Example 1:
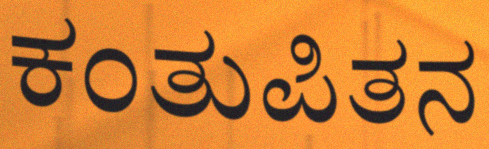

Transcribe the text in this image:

ಕಂತುಪಿತನ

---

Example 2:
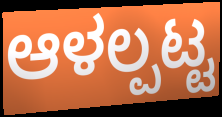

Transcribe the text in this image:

ಆಳಲ್ಪಟ್ಟ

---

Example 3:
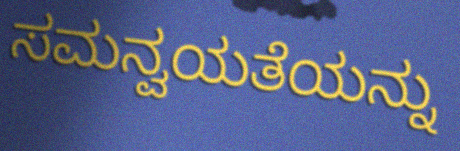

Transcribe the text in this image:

ಸಮನ್ವಯತೆಯನ್ನು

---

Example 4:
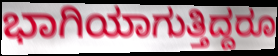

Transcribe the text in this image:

ಭಾಗಿಯಾಗುತ್ತಿದ್ದರೂ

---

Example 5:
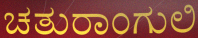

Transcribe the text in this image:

ಚತುರಾಂಗುಲಿ